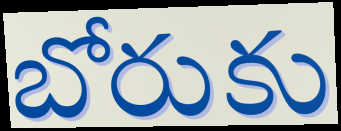
బోరుకు